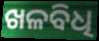
ଖଳବିଧି